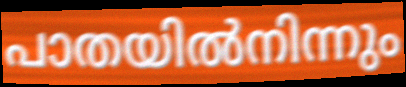
പാതയിൽനിന്നും